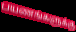
பயணங்களுக்கு